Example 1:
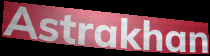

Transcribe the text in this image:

Astrakhan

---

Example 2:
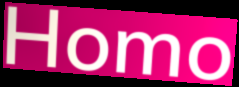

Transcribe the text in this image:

Homo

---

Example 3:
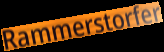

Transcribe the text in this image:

Rammerstorfer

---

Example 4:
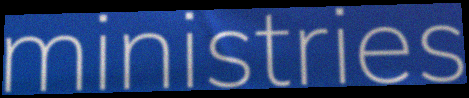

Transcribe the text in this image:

ministries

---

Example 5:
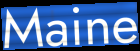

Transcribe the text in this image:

Maine